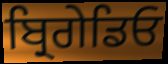
ਬ੍ਰਿਗੇਡਿਓ